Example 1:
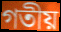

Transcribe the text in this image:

গতীয়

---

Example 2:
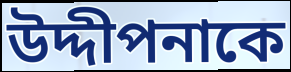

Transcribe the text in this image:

উদ্দীপনাকে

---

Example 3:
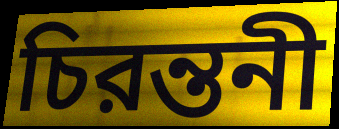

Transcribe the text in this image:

চিরন্তনী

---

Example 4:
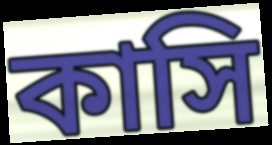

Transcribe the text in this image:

কাসি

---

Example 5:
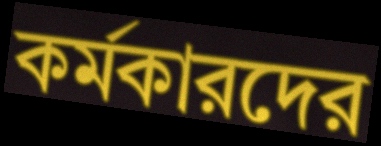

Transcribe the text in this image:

কর্মকারদের